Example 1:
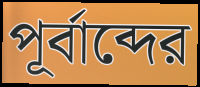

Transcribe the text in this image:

পূর্বাব্দের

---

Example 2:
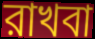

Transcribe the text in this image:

রাখবা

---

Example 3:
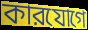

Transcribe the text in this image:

কারযোগে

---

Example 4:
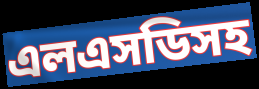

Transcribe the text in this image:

এলএসডিসহ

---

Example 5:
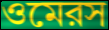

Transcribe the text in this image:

ওমেরস